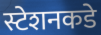
स्टेशनकडे